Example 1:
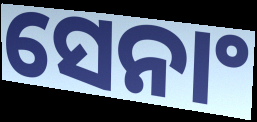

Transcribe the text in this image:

ସେନାଂ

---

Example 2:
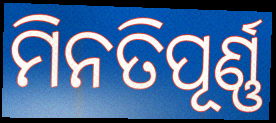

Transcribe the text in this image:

ମିନତିପୂର୍ଣ୍ଣ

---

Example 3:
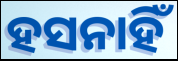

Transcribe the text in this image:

ହସନାହିଁ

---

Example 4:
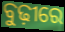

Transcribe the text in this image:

ବୁଢ଼ୀରେ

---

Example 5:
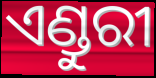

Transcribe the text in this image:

ଏଣ୍ଡୁରୀ